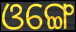
ଓଙ୍ଗେ